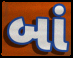
બાં